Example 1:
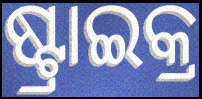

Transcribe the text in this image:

ଷ୍ଟ୍ରାଇକ୍ର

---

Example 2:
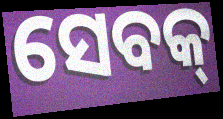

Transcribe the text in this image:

ସେବକ୍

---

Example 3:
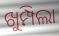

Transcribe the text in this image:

ଖୁମ୍ପିଲା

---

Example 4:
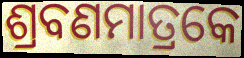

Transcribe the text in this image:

ଶ୍ରବଣମାତ୍ରକେ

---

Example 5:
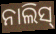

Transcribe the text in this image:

ନାଲିସ୍